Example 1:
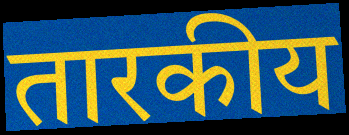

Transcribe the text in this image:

तारकीय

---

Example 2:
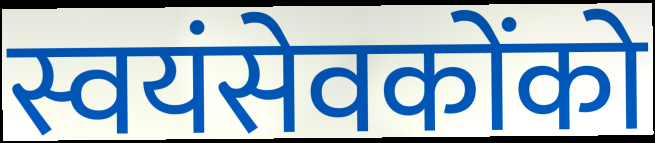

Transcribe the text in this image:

स्वयंसेवकोंको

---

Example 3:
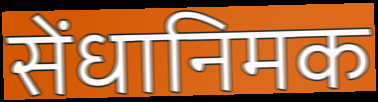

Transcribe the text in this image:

सेंधानिमक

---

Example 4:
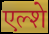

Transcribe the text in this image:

एल्शे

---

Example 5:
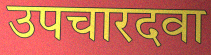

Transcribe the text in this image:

उपचारदवा